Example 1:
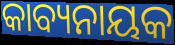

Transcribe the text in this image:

କାବ୍ୟନାୟକ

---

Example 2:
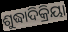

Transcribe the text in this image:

ଶୁଦ୍ଧାଦିକ୍ରିୟା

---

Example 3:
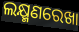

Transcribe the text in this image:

ଲକ୍ଷ୍ମଣରେଖା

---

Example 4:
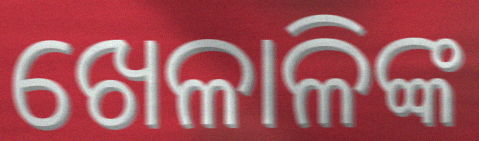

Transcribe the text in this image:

ଖେଳାଳିଙ୍କ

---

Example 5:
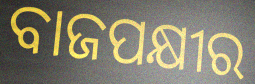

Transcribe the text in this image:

ବାଜପକ୍ଷୀର